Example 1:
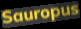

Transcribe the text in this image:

Sauropus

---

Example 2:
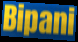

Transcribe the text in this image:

Bipani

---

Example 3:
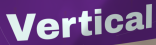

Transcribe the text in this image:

Vertical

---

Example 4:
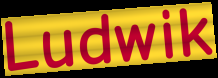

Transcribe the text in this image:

Ludwik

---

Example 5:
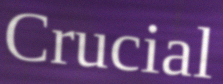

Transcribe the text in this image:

Crucial